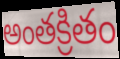
అంతక్రితం